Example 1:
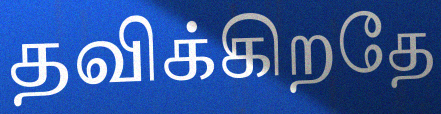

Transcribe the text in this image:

தவிக்கிறதே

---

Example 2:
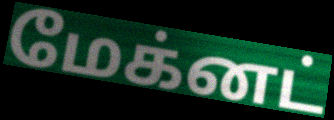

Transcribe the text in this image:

மேக்னட்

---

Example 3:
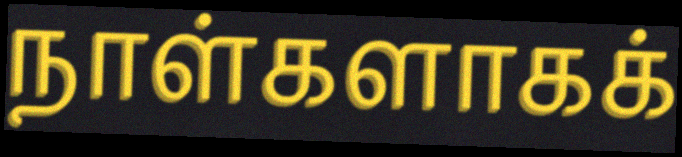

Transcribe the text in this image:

நாள்களாகக்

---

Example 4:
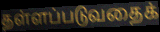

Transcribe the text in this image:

தள்ளப்படுவதைக்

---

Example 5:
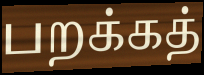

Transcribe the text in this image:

பறக்கத்